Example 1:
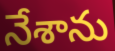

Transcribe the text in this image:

నేశాను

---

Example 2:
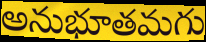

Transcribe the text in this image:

అనుభూతమగు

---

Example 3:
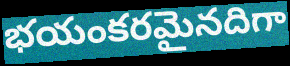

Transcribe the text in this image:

భయంకరమైనదిగా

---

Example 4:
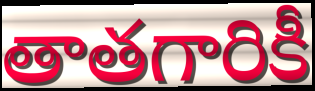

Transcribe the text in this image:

తాతగారికీ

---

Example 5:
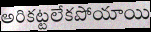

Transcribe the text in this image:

అరికట్టలేకపోయాయి